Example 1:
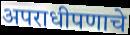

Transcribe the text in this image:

अपराधीपणाचे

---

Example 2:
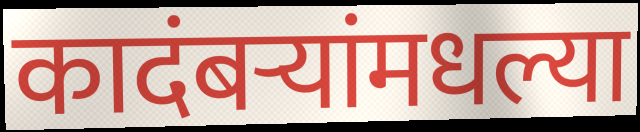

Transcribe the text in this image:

कादंबऱ्यांमधल्या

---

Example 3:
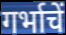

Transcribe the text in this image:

गर्भाचें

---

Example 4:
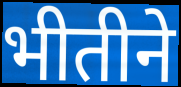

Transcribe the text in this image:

भीतीने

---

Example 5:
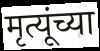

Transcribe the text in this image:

मृत्यूंच्या